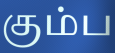
கும்ப